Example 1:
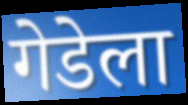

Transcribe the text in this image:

गेडेला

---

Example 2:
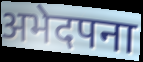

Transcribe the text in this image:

अभेदपना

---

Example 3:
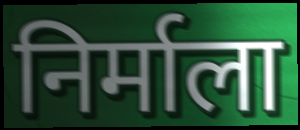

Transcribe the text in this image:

निर्माला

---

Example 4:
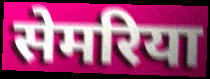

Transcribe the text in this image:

सेमरिया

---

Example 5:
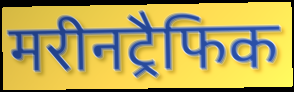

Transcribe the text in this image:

मरीनट्रैफिक